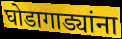
घोडागाड्यांना